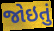
જોઇતું